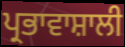
ਪ੍ਰਭਾਵਾਸ਼ਾਲੀ